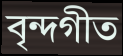
বৃন্দগীত